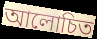
আলোচিত